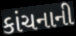
કાંચનાની